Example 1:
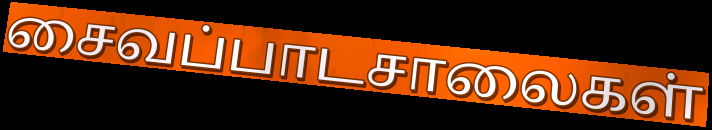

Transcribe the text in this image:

சைவப்பாடசாலைகள்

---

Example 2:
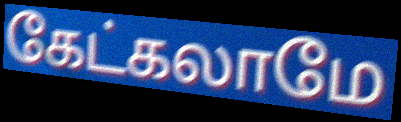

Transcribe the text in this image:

கேட்கலாமே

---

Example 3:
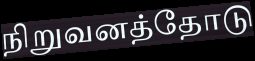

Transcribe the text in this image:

நிறுவனத்தோடு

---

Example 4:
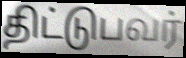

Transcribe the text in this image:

திட்டுபவர்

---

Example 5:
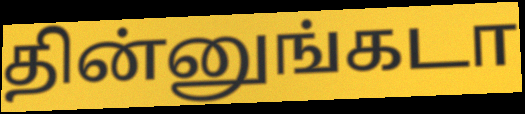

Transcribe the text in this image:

தின்னுங்கடா